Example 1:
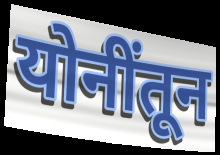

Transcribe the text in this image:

योनींतून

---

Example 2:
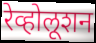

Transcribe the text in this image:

रेव्होलूशन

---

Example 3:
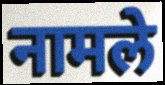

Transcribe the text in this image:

नामले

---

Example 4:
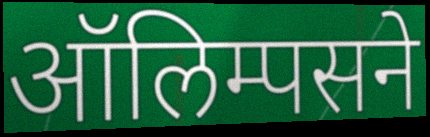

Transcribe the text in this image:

ऑलिम्पसने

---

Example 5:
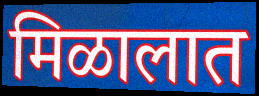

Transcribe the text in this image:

मिळालात